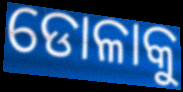
ଡୋଳାକୁ